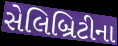
સેલિબ્રિટીના